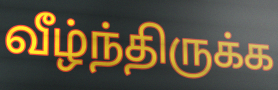
வீழ்ந்திருக்க